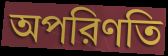
অপরিণতি